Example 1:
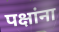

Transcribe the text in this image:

पक्षांना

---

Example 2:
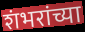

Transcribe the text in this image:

शंभरांच्या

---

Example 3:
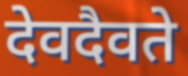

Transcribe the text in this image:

देवदैवते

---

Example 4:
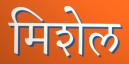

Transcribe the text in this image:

मिशेल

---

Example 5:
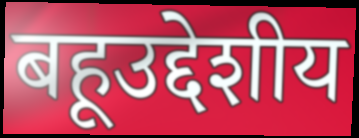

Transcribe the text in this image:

बहूउद्देशीय